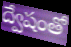
ద్వేషంతో